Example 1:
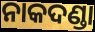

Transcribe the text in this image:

ନାକଦଣ୍ଡା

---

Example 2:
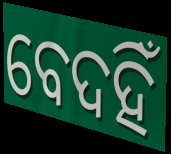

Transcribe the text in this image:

ବେଦହିଁ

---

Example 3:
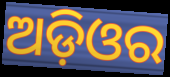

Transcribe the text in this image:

ଅଡ଼ିଓର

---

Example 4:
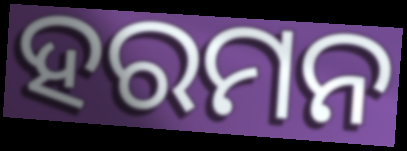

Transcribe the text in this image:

ହରମନ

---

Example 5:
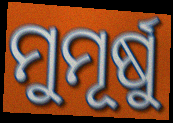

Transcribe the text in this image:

ମୁମୂର୍ଷୁ